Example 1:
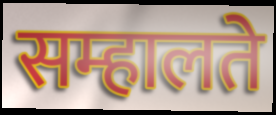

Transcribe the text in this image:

सम्हालते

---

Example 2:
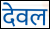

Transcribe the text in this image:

देवल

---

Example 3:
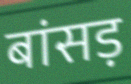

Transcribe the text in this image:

बांसड़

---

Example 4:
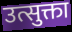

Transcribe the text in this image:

उत्सुक्ता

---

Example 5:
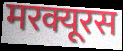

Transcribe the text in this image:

मरक्यूरस